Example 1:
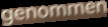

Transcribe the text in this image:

genommen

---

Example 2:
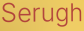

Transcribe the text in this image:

Serugh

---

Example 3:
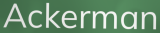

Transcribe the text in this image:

Ackerman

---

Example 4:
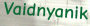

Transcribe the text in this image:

Vaidnyanik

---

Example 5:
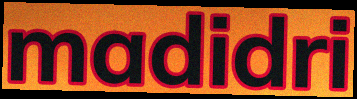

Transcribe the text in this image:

madidri